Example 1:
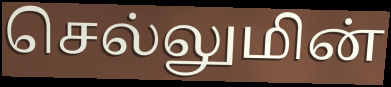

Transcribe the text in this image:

செல்லுமின்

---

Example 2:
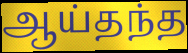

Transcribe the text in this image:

ஆய்தந்த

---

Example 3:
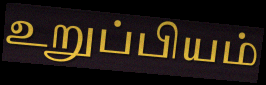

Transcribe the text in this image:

உறுப்பியம்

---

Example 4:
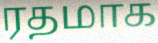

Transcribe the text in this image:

ரதமாக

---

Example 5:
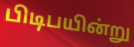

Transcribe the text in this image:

பிடிபயின்று